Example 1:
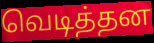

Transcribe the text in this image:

வெடித்தன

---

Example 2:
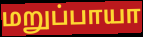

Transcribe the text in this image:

மறுப்பாயா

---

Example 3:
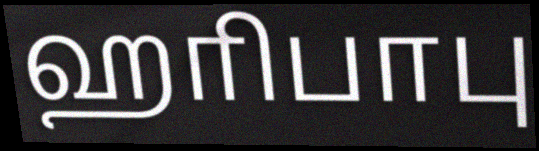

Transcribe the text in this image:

ஹரிபாபு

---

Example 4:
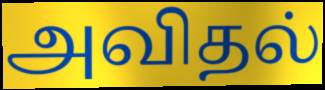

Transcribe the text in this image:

அவிதல்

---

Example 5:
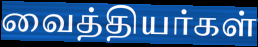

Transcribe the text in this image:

வைத்தியர்கள்